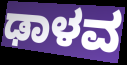
ಢಾಳವ